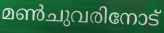
മൺചുവരിനോട്